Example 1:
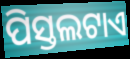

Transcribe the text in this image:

ପିସ୍ତଲଟାଏ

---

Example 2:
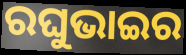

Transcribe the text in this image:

ରଘୁଭାଇର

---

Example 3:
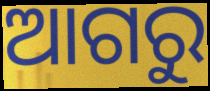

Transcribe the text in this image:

ଆଗରୁ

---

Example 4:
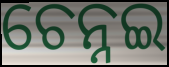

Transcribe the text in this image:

ଚେନ୍ନଇ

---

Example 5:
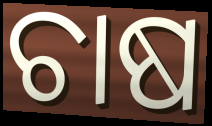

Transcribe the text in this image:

ଚାଷ